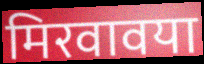
मिरवावया